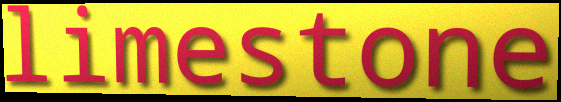
limestone